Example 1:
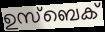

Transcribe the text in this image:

ഉസ്ബെക്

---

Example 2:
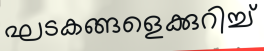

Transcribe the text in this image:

ഘടകങ്ങളെക്കുറിച്ച്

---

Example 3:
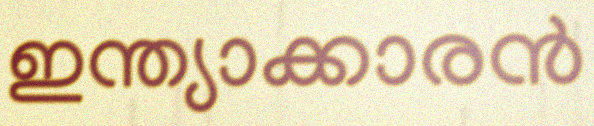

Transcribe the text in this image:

ഇന്ത്യാക്കാരൻ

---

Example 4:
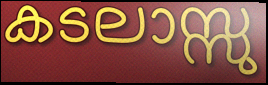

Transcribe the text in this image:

കടലാസ്സു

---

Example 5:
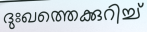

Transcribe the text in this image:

ദുഃഖത്തെക്കുറിച്ച്